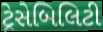
ટ્રેસેબિલિટી